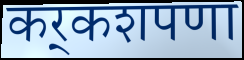
कर्कशपणा